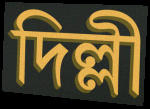
দিল্লী